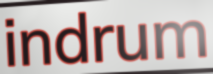
indrum